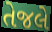
તેજલે